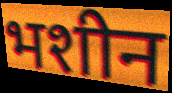
भशीन